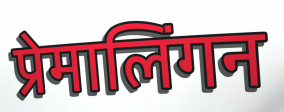
प्रेमालिंगन